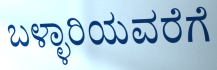
ಬಳ್ಳಾರಿಯವರೆಗೆ